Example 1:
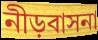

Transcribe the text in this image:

নীড়বাসনা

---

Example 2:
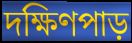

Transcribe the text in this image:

দক্ষিণপাড়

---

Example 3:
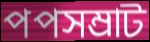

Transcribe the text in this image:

পপসম্রাট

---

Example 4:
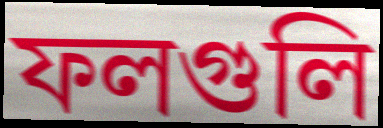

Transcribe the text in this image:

ফলগুলি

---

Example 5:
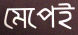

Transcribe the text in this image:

মেপেই